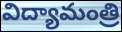
విద్యామంత్రి